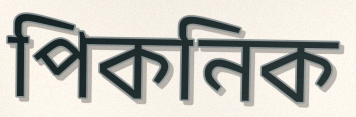
পিকনিক